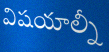
విషయాల్నీ